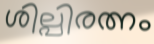
ശില്പിരത്നം